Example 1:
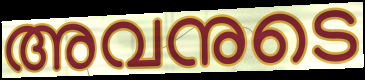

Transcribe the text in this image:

അവനുടെ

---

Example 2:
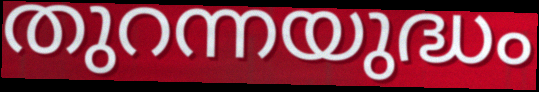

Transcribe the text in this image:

തുറന്നയുദ്ധം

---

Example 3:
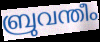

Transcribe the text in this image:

ബ്രുവന്തീം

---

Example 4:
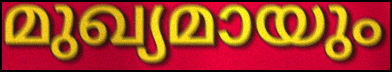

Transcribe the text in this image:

മുഖ്യമായും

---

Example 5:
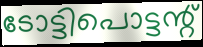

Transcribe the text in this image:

ടോട്ടിപൊട്ടന്റ്